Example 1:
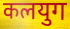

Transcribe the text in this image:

कलयुग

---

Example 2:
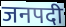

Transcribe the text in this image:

जनपदी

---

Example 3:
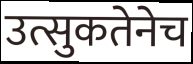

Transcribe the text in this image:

उत्सुकतेनेच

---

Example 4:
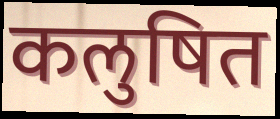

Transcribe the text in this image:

कलुषित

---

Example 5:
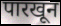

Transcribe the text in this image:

पारखून